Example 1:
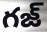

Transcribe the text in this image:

గజ్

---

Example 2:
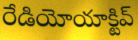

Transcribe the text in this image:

రేడియోయాక్టివ్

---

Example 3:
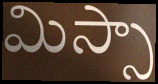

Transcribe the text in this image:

మిస్సా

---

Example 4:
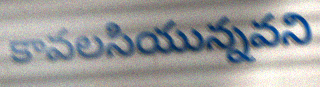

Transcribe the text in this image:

కావలసియున్నవని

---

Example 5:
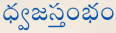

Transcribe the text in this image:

ధ్వజస్తంభం